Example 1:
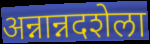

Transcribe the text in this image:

अन्नान्नदशेला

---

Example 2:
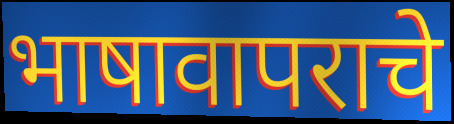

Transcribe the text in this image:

भाषावापराचे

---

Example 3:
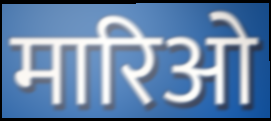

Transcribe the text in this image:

मारिओ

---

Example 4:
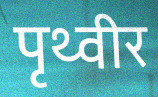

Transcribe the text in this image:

पृथ्वीर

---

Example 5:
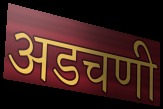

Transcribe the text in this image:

अडचणी